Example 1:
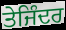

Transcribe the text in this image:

ਤੇਜਿੰਦਰ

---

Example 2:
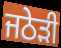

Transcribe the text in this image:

ਜਠੇੜੀ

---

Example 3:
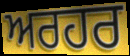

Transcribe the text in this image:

ਅਰਹਰ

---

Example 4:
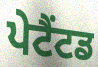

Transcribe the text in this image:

ਪੇਟੈਂਟਡ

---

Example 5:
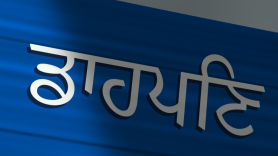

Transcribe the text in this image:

ਡਾਹਪਣਿ